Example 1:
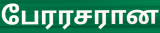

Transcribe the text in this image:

பேரரசரான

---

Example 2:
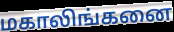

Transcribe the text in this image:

மகாலிங்கனை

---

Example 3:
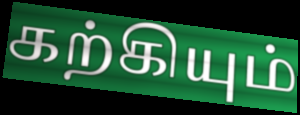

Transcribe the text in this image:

கற்கியும்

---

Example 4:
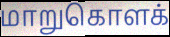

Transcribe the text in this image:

மாறுகொளக்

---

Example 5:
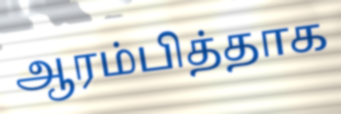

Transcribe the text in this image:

ஆரம்பித்தாக